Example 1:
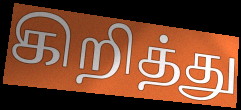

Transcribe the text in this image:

கிறித்து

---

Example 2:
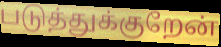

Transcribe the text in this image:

படுத்துக்குறேன்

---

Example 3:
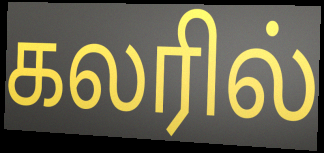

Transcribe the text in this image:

கலரில்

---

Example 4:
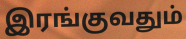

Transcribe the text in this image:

இரங்குவதும்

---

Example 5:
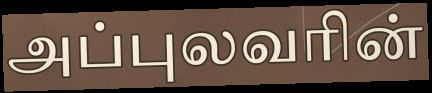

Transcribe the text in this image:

அப்புலவரின்